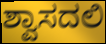
ಶ್ವಾಸದಲಿ